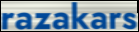
razakars